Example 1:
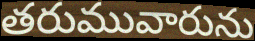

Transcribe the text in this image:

తరుమువారును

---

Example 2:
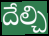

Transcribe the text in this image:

దేల్చి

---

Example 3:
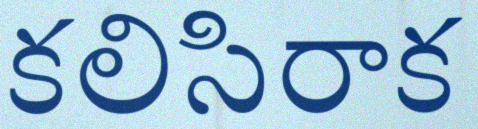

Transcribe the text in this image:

కలిసిరాక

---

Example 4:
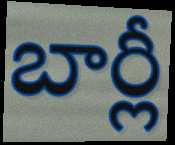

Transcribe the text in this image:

బార్లీ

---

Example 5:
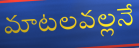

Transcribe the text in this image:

మాటలవల్లనే